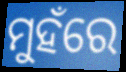
ମୁହଁରେ